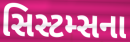
સિસ્ટમ્સના